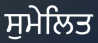
ਸੁਮੇਲਿਤ